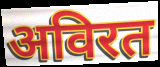
अविरत